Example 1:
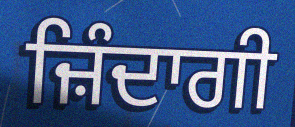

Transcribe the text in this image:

ਜ਼ਿੰਦਾਗੀ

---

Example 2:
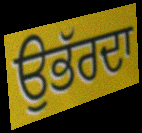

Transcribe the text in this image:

ਉਭੱਰਦਾ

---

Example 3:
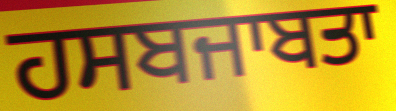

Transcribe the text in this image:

ਹਸਬਜਾਬਤਾ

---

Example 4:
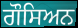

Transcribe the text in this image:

ਗੌਸਿਅਨ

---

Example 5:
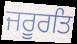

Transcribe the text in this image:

ਜਰੂਰਤਿ